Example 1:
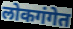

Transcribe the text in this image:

लोकगंगेत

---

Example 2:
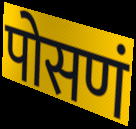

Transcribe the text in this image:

पोसणं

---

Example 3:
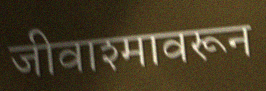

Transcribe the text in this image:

जीवाश्मावरून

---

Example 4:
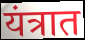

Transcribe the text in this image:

यंत्रात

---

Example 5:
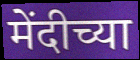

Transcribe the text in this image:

मेंदीच्या